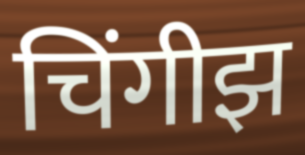
चिंगीझ